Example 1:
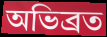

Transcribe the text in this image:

অভিব্রত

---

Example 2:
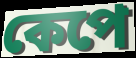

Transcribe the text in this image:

কেপে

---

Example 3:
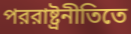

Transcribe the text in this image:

পররাষ্ট্রনীতিতে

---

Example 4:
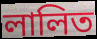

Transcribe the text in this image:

লালিত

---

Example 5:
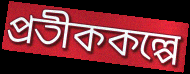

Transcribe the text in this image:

প্রতীককল্পে